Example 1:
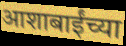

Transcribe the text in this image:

आशाबाईंच्या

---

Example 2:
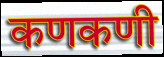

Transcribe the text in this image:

कणकणी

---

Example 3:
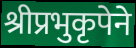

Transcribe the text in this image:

श्रीप्रभुकृपेने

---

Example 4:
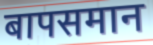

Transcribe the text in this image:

बापसमान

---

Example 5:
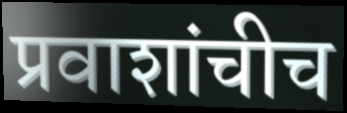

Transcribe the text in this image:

प्रवाशांचीच